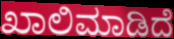
ಖಾಲಿಮಾಡಿದೆ